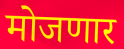
मोजणार